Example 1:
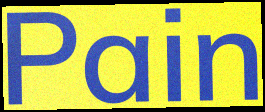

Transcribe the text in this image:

Pain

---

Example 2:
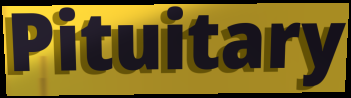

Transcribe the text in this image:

Pituitary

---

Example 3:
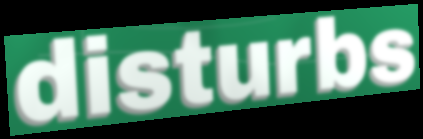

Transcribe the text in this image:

disturbs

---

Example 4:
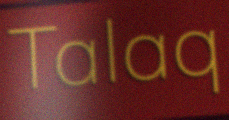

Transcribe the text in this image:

Talaq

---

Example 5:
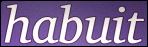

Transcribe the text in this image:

habuit